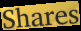
Shares